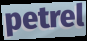
petrel